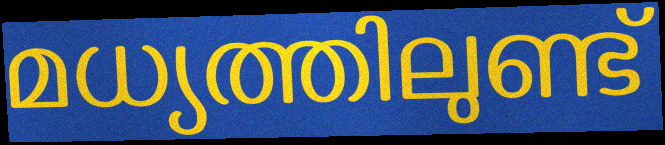
മധ്യത്തിലുണ്ട്